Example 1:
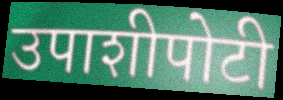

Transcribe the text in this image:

उपाशीपोटी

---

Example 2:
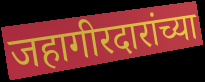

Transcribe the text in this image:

जहागीरदारांच्या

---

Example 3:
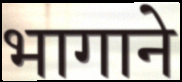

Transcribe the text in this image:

भागाने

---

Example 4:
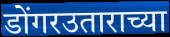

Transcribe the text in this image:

डोंगरउताराच्या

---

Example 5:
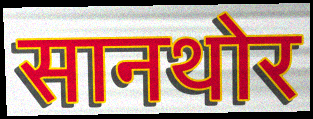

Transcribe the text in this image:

सानथोर